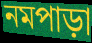
নমপাড়া